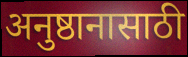
अनुष्ठानासाठी